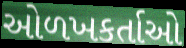
ઓળખકર્તાઓ